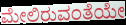
ಮೇಲಿರುವಂತೆಯೇ